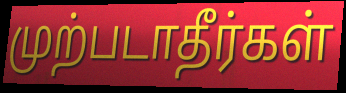
முற்படாதீர்கள்